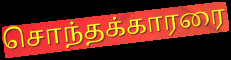
சொந்தக்காரரை